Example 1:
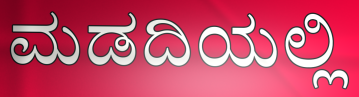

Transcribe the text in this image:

ಮಡದಿಯಲ್ಲಿ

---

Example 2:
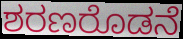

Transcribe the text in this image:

ಶರಣರೊಡನೆ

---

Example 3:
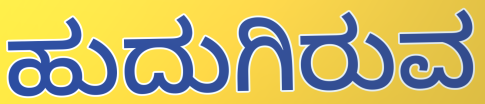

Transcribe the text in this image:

ಹುದುಗಿರುವ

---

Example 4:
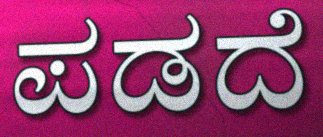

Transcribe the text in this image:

ಪಡದೆ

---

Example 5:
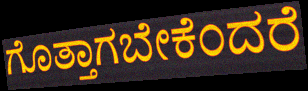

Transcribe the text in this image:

ಗೊತ್ತಾಗಬೇಕೆಂದರೆ